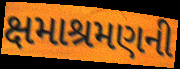
ક્ષમાશ્રમણની